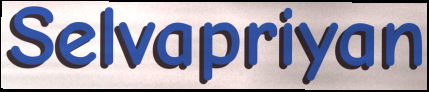
Selvapriyan